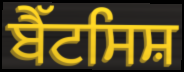
ਬੈੱਟਸਿਸ਼